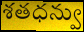
శతధన్వు